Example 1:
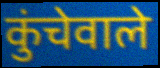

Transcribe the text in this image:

कुंचेवाले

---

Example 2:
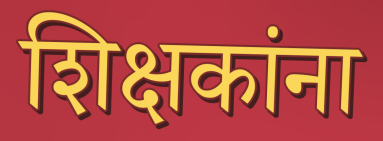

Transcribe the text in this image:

शिक्षकांना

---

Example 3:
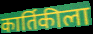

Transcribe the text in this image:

कार्तिकीला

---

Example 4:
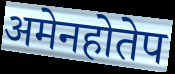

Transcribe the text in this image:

अमेनहोतेप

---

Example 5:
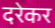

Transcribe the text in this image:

दरेकर